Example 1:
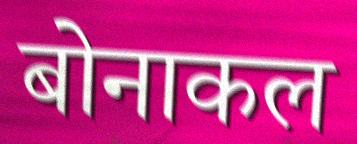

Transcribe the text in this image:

बोनाकल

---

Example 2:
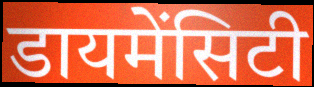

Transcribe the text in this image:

डायमेंसिटी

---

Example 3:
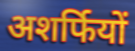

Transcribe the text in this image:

अशर्फियों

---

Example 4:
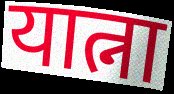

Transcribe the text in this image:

यात्ना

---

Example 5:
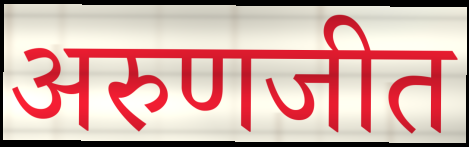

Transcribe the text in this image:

अरुणजीत